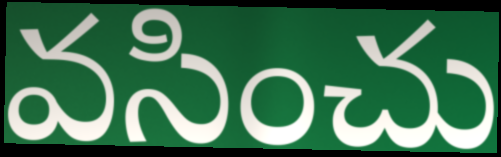
వసించు